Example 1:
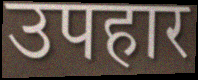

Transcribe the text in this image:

उपहार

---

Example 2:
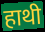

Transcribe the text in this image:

हाथी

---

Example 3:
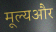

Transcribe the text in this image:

मूल्यऔर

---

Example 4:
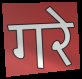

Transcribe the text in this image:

गरे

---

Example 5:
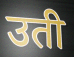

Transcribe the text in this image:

उती